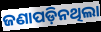
ଜଣାପଡ଼ିନଥିଲା